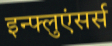
इन्फ्लुएंसर्स